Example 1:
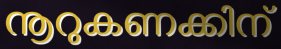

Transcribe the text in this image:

നൂറുകണക്കിന്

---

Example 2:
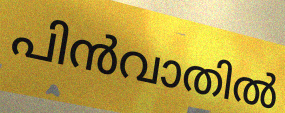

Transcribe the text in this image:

പിൻവാതിൽ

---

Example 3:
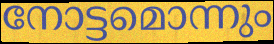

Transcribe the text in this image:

നോട്ടമൊന്നും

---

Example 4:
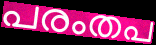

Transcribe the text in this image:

പരംതപ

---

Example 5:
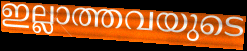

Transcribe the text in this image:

ഇല്ലാത്തവയുടെ